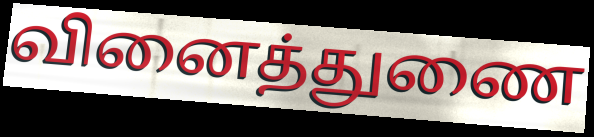
வினைத்துணை